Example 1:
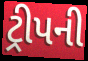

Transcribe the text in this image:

ટ્રીપની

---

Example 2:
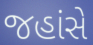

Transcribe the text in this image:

જહાંસે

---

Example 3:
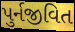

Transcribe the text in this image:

પુર્નજીવિત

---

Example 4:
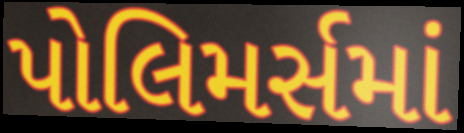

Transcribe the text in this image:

પોલિમર્સમાં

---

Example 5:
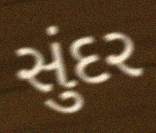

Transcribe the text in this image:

સુંદર